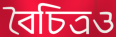
বৈচিত্রও